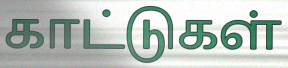
காட்டுகள்